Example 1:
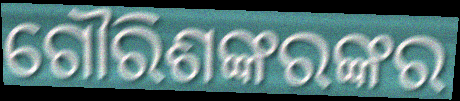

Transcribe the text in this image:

ଗୌରିଶଙ୍କରଙ୍କର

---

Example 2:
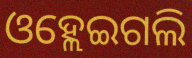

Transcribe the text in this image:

ଓହ୍ଲେଇଗଲି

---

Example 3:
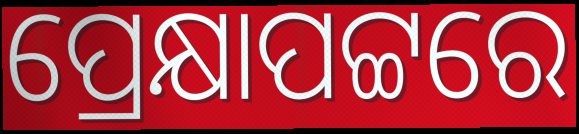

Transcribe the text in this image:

ପ୍ରେକ୍ଷାପଟ୍ଟରେ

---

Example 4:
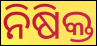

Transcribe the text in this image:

ନିଷିକ୍ତ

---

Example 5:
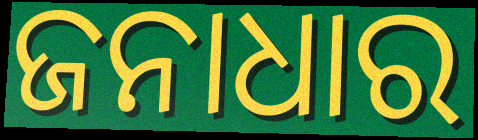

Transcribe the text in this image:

ଜନାଧାର